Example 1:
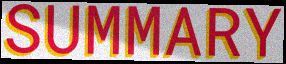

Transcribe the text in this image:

SUMMARY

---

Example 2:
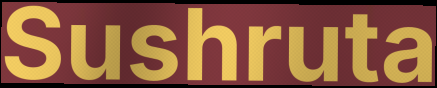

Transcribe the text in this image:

Sushruta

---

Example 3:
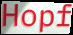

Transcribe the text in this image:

Hopf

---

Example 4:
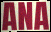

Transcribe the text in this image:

ANA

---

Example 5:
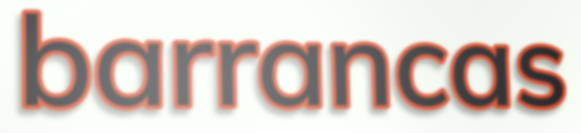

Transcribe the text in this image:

barrancas